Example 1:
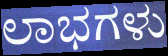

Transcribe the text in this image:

ಲಾಭಗಳು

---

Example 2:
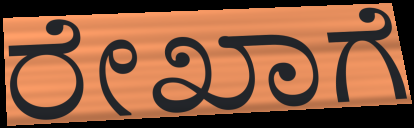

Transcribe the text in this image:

ರೇಖಾಗೆ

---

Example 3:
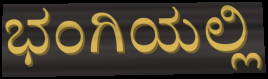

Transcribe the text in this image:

ಭಂಗಿಯಲ್ಲಿ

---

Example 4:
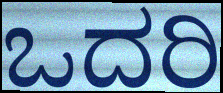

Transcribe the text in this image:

ಒದರಿ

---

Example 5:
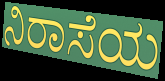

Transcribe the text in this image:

ನಿರಾಸೆಯ